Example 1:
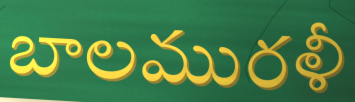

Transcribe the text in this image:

బాలమురళీ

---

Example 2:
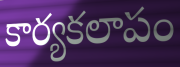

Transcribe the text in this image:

కార్యకలాపం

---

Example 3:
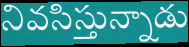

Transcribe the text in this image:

నివసిస్తున్నాడు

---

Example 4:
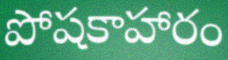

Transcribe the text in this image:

పోషకాహారం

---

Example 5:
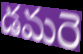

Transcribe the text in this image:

డమరె